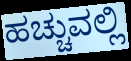
ಹಚ್ಚುವಲ್ಲಿ